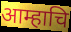
आम्हाचि